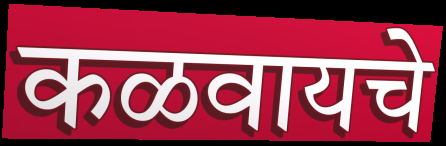
कळवायचे